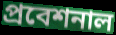
প্রবেশনাল